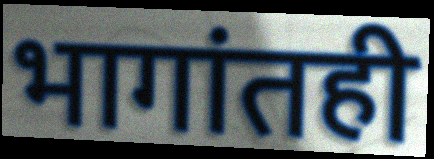
भागांतही